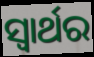
ସ୍ଵାର୍ଥର